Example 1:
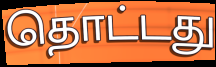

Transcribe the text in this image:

தொட்டது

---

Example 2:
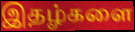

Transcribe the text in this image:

இதழ்களை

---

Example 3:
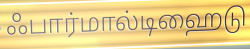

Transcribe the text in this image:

ஃபார்மால்டிஹைடு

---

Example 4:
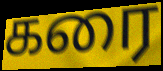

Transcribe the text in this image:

கரை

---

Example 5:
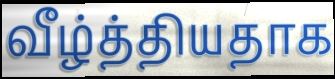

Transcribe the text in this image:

வீழ்த்தியதாக